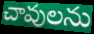
చావులను